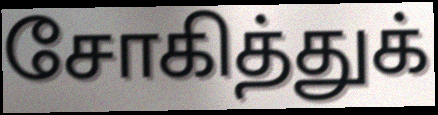
சோகித்துக்